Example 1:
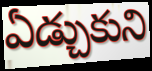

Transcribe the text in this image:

ఏడ్చుకుని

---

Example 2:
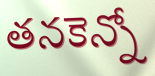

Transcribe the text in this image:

తనకెన్నో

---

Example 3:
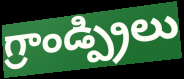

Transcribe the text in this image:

గ్రాండ్ప్రిలు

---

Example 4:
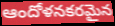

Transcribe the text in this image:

ఆందోళనకరమైన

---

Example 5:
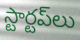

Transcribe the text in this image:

స్టార్టప్‌లు